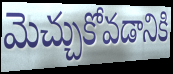
మెచ్చుకోవడానికి